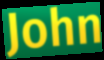
John